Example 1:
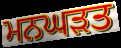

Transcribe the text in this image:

ਮਨਘੜਤ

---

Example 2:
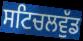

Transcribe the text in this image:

ਸਟਿਚਲਵੁੱਡ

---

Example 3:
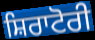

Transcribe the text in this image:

ਸ਼ਿਰਾਟੋਰੀ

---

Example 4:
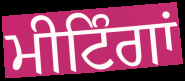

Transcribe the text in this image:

ਮੀਟਿੰਗਾਂ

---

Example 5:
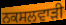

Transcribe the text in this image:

ਨਕਸਲਵਾੜੀ